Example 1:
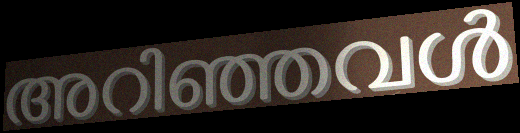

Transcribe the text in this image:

അറിഞ്ഞവൾ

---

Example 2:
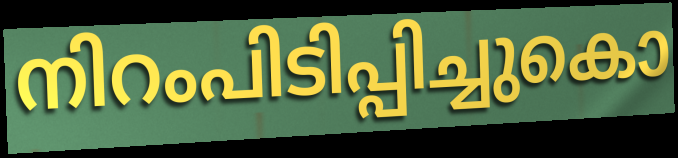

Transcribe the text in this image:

നിറംപിടിപ്പിച്ചുകൊ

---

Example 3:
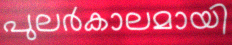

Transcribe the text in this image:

പുലർകാലമായി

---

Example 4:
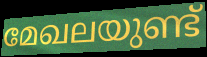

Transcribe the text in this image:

മേഖലയുണ്ട്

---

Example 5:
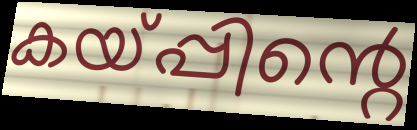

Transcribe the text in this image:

കയ്പ്പിന്റെ